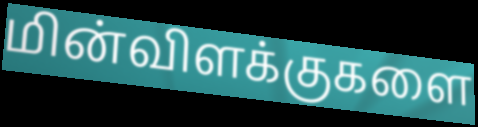
மின்விளக்குகளை